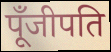
पूँजीपति